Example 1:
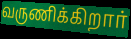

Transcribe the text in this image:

வருணிக்கிறார்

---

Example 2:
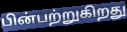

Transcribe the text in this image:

பின்பற்றுகிறது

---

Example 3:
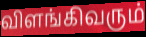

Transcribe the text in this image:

விளங்கிவரும்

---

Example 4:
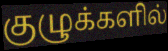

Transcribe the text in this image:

குழுக்களில்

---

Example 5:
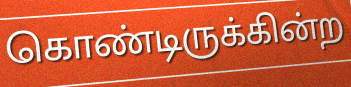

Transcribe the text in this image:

கொண்டிருக்கின்ற